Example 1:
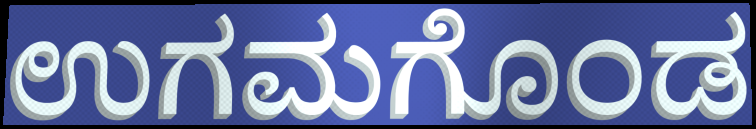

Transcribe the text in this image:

ಉಗಮಗೊಂಡ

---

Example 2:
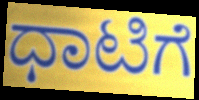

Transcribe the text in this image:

ಧಾಟಿಗೆ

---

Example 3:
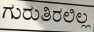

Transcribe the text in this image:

ಗುರುತಿರಲಿಲ್ಲ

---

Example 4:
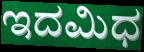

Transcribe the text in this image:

ಇದಮಿಧ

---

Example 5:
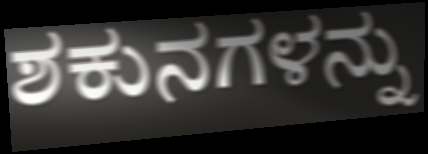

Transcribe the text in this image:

ಶಕುನಗಳನ್ನು